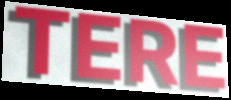
TERE